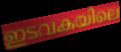
ഇടവകയിലെ